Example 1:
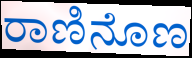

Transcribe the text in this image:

ರಾಣಿನೊಣ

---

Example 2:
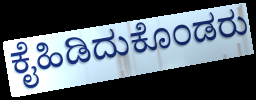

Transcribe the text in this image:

ಕೈಹಿಡಿದುಕೊಂಡರು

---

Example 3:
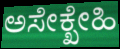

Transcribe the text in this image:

ಅಸೇಕ್ಖೇಹಿ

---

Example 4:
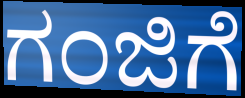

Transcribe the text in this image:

ಗಂಜಿಗೆ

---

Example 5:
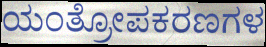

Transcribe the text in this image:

ಯಂತ್ರೋಪಕರಣಗಳ